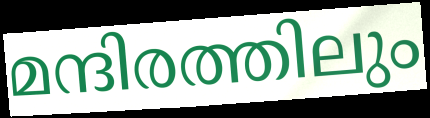
മന്ദിരത്തിലും